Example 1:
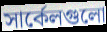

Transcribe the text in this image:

সার্কেলগুলো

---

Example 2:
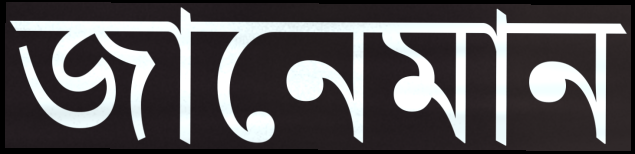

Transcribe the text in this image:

জানেমান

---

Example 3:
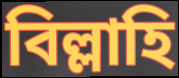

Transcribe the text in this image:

বিল্লাহি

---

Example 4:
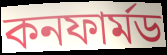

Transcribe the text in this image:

কনফার্মড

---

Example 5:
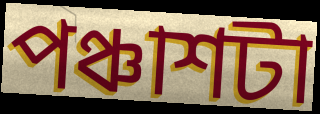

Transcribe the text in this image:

পঞ্চাশটা